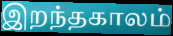
இறந்தகாலம்